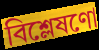
বিশ্লেষণো